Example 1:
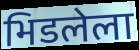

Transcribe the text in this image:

भिडलेला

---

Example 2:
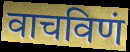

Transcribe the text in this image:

वाचविणं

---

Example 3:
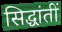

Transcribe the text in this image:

सिद्धांतीं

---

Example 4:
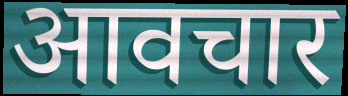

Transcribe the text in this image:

आवचार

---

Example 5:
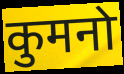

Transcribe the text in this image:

कुमनो